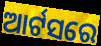
ଆର୍ଟସରେ